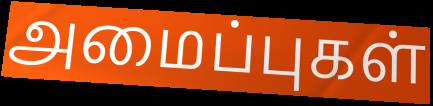
அமைப்புகள்